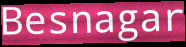
Besnagar